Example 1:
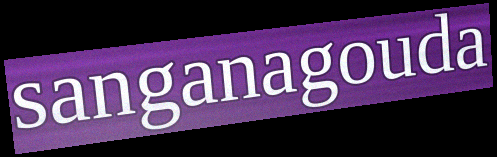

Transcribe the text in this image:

sanganagouda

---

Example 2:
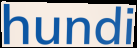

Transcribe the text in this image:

hundi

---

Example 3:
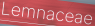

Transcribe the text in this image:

Lemnaceae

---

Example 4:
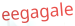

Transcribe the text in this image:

eegagale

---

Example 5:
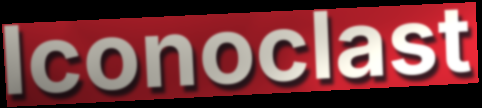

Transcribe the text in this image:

Iconoclast